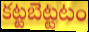
కట్టబెట్టటం